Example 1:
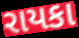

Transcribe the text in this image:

રાયકા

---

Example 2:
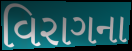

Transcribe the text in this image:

વિરાગના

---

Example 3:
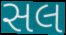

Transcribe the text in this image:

સલ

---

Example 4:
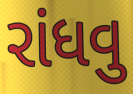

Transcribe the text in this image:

રાંધવુ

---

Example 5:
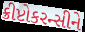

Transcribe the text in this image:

ક્રીપ્ટોકરન્સીને